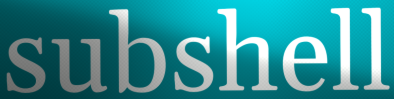
subshell